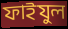
ফাইযুল